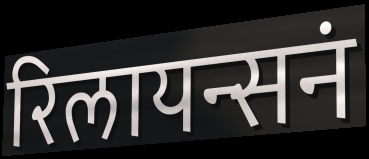
रिलायन्सनं